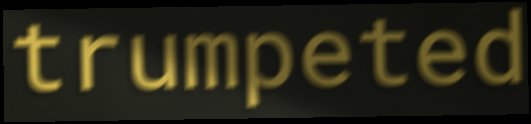
trumpeted